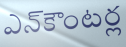
ఎన్‌కౌంటర్ల